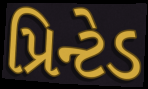
પ્રિન્ટેડ